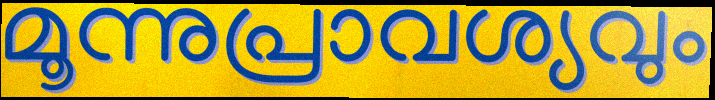
മൂന്നുപ്രാവശ്യവും